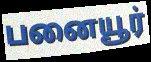
பனையூர்